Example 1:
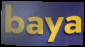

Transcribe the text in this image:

baya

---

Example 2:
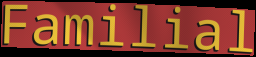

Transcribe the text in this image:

Familial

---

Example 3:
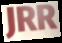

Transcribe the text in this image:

JRR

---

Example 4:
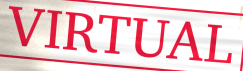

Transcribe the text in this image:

VIRTUAL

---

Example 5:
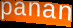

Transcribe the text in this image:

panan